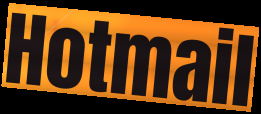
Hotmail